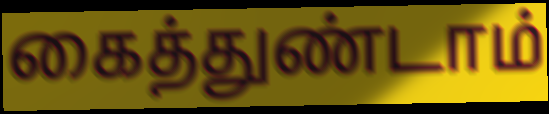
கைத்துண்டாம்